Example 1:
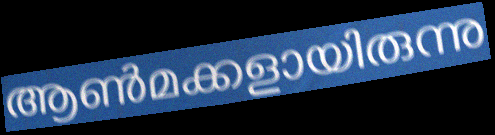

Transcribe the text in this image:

ആൺമക്കളായിരുന്നു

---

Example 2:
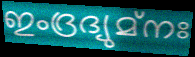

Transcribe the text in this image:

ഇംദ്രദ്യുമ്നഃ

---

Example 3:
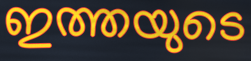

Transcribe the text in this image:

ഇത്തയുടെ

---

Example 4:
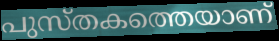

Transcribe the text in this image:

പുസ്തകത്തെയാണ്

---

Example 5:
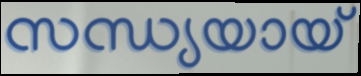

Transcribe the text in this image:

സന്ധ്യയായ്